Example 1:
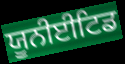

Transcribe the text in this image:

ਯੂਨੀਈਟਿਡ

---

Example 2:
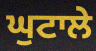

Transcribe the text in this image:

ਘੁਟਾਲੇ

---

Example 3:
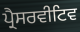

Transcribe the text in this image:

ਪ੍ਰੈਸਰਵੀਟਿਵ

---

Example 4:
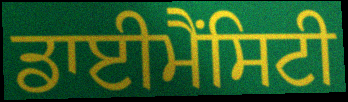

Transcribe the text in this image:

ਡਾਈਮੈਂਸਿਟੀ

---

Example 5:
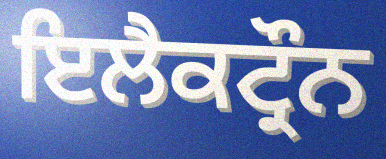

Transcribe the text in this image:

ਇਲੈਕਟ੍ਰੌਨ